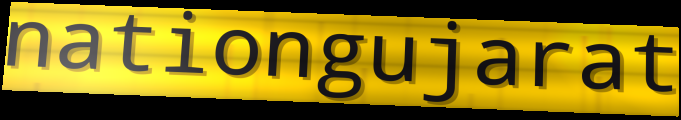
nationgujarat